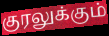
குரலுக்கும்